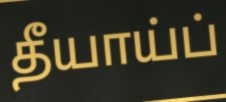
தீயாய்ப்